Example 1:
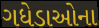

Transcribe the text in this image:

ગધેડાઓના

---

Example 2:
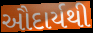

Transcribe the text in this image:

ઔદાર્યથી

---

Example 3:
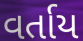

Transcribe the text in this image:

વર્તાય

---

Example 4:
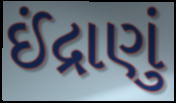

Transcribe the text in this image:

ઈંદ્રાણું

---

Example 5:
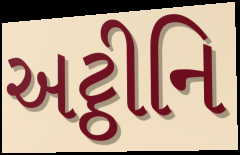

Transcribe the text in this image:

અટ્ઠીનિ